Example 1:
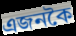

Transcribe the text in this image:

এজনকৈ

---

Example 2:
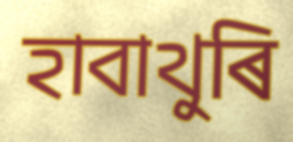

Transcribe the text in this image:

হাবাথুৰি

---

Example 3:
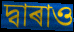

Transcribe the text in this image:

দ্বাৰাও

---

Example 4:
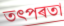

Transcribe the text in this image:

তৎপৰতা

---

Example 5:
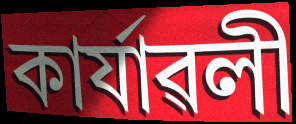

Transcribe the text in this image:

কাৰ্যাৱলী